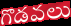
గొడవలు